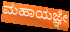
ಮಹಾಯಜ್ಞೇ